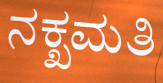
ನಕ್ಖಮತಿ